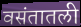
वसंतातली